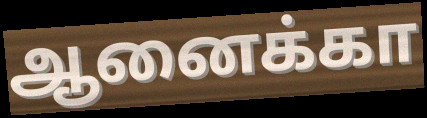
ஆனைக்கா